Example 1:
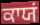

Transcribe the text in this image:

ਕਾਯਂ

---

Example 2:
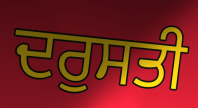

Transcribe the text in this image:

ਦਰੁਸਤੀ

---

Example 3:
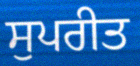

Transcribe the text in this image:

ਸੁਪਰੀਤ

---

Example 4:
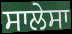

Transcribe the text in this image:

ਸਾਲੇਸਾ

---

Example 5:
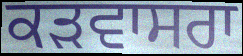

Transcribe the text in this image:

ਕੜਵਾਸਰਾ